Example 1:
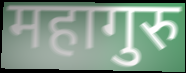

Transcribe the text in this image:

महागुरु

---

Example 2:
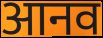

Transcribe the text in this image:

आनव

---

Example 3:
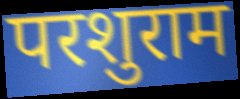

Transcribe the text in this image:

परशुराम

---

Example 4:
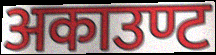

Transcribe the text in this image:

अकाउण्ट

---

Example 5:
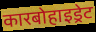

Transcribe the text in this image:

कारबोहाइड्रेट